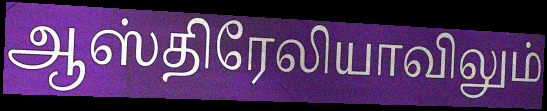
ஆஸ்திரேலியாவிலும்